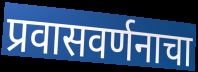
प्रवासवर्णनाचा